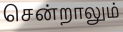
சென்றாலும்